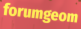
forumgeom